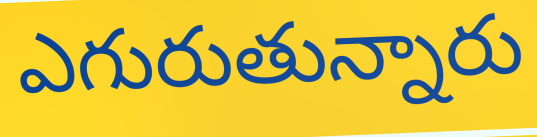
ఎగురుతున్నారు